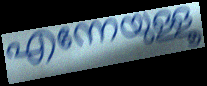
എന്നേയുള്ളൂ